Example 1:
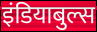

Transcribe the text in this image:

इंडियाबुल्‍स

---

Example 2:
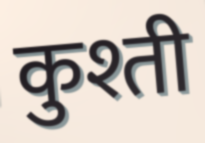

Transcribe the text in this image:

कुश्ती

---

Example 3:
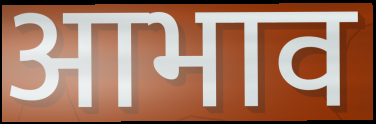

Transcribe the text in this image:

आभाव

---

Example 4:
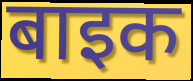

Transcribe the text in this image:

बाइक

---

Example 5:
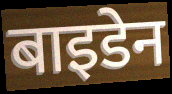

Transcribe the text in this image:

बाइडेन